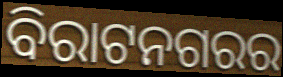
ବିରାଟନଗରର